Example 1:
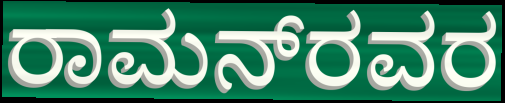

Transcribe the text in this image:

ರಾಮನ್‌ರವರ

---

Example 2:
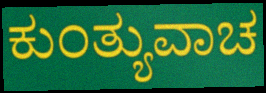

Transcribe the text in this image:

ಕುಂತ್ಯುವಾಚ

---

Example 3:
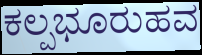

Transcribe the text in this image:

ಕಲ್ಪಭೂರುಹವ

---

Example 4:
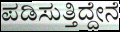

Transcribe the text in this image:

ಪಡಿಸುತ್ತಿದ್ದೇನೆ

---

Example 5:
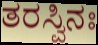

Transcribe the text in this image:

ತರಸ್ವಿನಃ